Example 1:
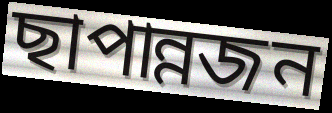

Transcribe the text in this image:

ছাপান্নজন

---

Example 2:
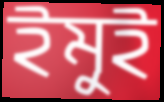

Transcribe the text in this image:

ইমুই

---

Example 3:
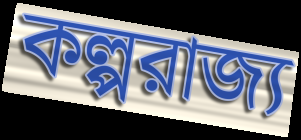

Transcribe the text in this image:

কল্পরাজ্য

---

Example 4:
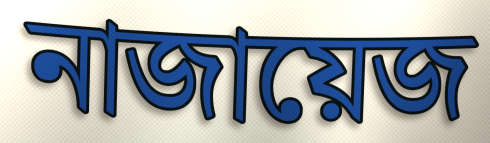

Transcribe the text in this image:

নাজায়েজ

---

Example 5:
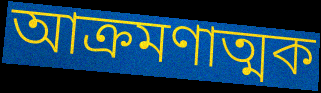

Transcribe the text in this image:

আক্রমণাত্মক